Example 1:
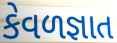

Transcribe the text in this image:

કેવળજ્ઞાત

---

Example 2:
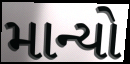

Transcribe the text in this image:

માન્યો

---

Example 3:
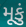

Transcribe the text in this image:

મૂકું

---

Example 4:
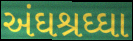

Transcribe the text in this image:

અંઘશ્રઘ્ઘા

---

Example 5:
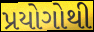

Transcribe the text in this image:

પ્રયોગોથી